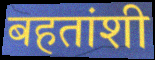
बहतांशी